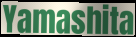
Yamashita